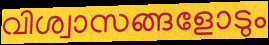
വിശ്വാസങ്ങളോടും